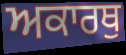
ਅਕਾਰਥੁ